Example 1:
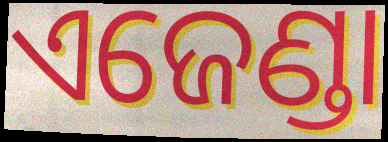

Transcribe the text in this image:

ଏଜେଣ୍ଡା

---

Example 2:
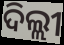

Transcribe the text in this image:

ଦିଲ୍ଲୀ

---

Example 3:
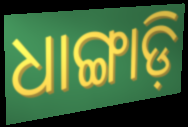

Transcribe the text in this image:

ଧାଙ୍ଗାଡ଼ି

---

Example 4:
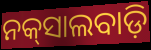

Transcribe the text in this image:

ନକ୍‌ସାଲବାଡ଼ି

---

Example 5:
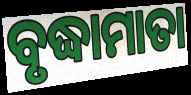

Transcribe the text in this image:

ବୃଦ୍ଧାମାତା